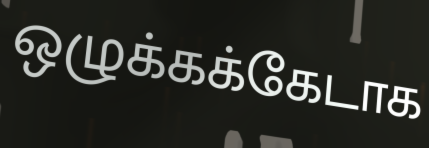
ஒழுக்கக்கேடாக